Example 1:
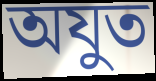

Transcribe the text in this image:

অযুত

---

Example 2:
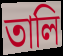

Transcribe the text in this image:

তালি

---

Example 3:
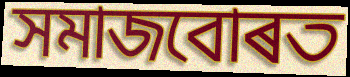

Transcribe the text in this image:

সমাজবোৰত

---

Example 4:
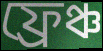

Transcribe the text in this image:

ফ্ৰেঞ্চ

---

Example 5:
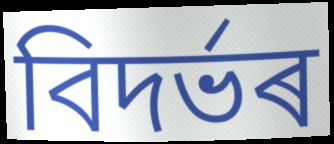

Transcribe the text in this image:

বিদৰ্ভৰ